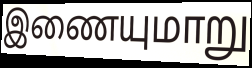
இணையுமாறு